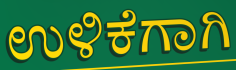
ಉಳಿಕೆಗಾಗಿ